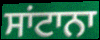
ਸਾਂਟਾਨਾ